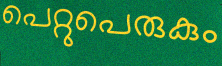
പെറ്റുപെരുകും